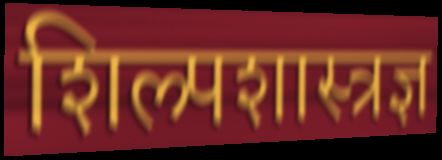
शिल्पशास्त्रज्ञ